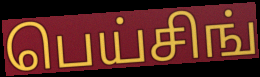
பெய்சிங்